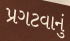
પ્રગટવાનું